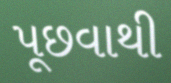
પૂછવાથી